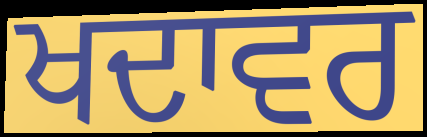
ਖਦਾਵਰ